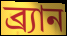
ব্র্যান